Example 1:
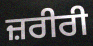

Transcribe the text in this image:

ਜ਼ਰੀਰੀ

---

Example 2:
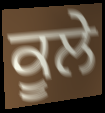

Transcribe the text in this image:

ਕੂਲੇ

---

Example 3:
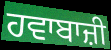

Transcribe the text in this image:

ਹਵਾਬਾਜ਼ੀ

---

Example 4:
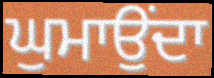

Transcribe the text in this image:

ਘੁਮਾਉਂਦਾ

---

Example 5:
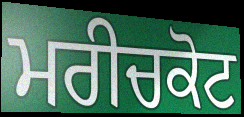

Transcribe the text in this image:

ਮਰੀਚਕੋਟ